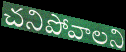
చనిపోవాలని